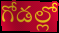
గోడల్లో